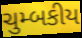
ચુમ્બકીય